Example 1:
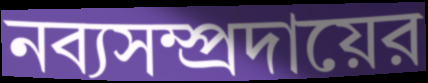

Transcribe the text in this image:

নব্যসম্প্রদায়ের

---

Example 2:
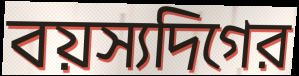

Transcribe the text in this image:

বয়স্যদিগের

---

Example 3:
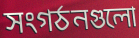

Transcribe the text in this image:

সংগঠনগুলো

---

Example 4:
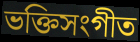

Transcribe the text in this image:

ভক্তিসংগীত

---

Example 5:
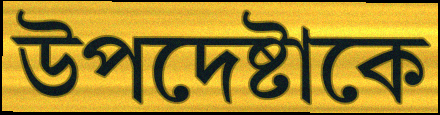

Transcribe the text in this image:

উপদেষ্টাকে